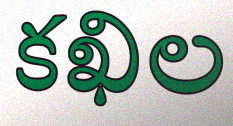
కఖిల